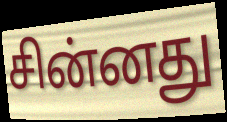
சின்னது